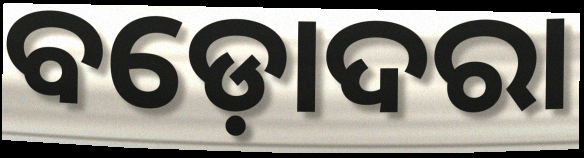
ବଡ଼ୋଦରା